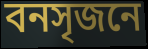
বনসৃজনে